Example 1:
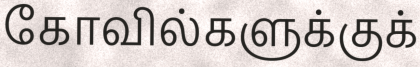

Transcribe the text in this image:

கோவில்களுக்குக்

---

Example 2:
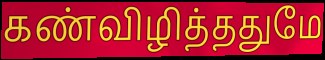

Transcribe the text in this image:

கண்விழித்ததுமே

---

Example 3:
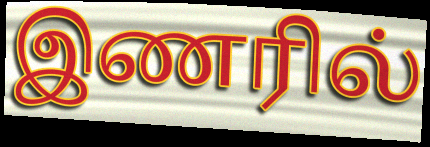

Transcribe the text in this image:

இணரில்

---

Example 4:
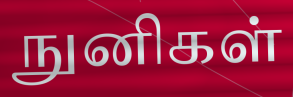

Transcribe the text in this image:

நுனிகள்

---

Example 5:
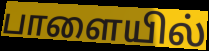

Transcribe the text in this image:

பாளையில்